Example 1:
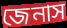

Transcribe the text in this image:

জেনাস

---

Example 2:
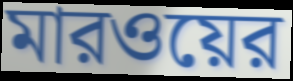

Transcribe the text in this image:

মারওয়ের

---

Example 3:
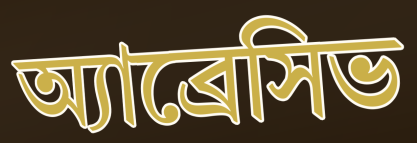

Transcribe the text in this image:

অ্যাব্রেসিভ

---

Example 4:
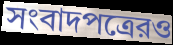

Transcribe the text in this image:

সংবাদপত্রেরও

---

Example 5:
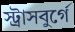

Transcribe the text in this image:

স্ট্রাসবুর্গে